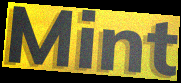
Mint